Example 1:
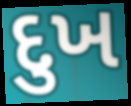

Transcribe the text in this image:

દુખ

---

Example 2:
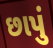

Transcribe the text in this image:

છાપું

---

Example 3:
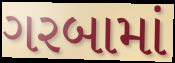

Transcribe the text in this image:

ગરબામાં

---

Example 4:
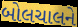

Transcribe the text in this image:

બોલચાલને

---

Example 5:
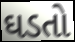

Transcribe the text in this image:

ઘડતો